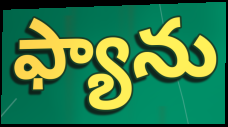
ఫ్యాను